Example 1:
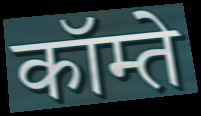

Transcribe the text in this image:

कॉम्ते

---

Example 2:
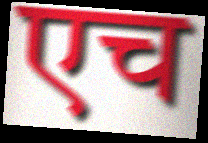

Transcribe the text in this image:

एच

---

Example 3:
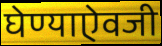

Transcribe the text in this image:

घेण्याऐवजी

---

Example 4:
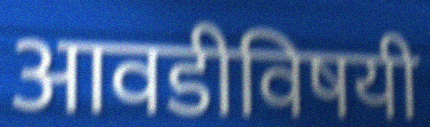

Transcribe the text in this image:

आवडीविषयी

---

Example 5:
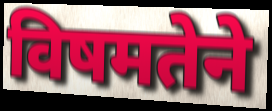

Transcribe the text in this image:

विषमतेने